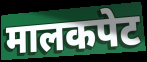
मालकपेट